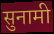
सुनामी